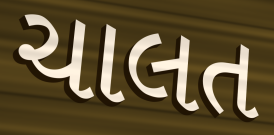
ચાલત